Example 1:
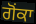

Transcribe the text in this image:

ਗੋਂਕਾ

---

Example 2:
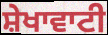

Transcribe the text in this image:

ਸ਼ੇਖਾਵਾਟੀ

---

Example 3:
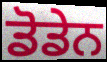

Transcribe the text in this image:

ਡੋਡੇਨ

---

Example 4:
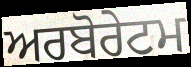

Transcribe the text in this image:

ਅਰਬੋਰੇਟਮ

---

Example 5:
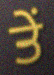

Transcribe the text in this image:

ਤੇੰ